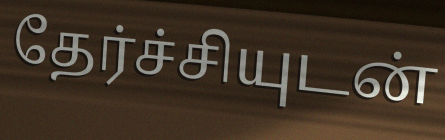
தேர்ச்சியுடன்